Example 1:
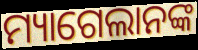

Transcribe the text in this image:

ମ୍ୟାଗେଲାନଙ୍କ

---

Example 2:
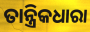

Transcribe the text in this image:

ତାନ୍ତ୍ରିକଧାରା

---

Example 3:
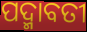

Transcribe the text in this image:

ପଦ୍ମାବତୀ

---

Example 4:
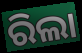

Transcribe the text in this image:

ରିଲା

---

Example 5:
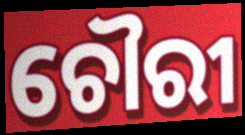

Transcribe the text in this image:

ଚୌରୀ